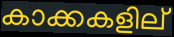
കാക്കകളില്